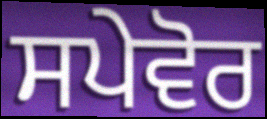
ਸਪੇਵੋਰ